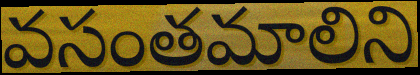
వసంతమాలిని